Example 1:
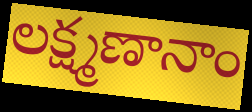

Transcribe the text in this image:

లక్ష్మణానాం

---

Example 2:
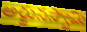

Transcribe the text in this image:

అర్జునస్వామి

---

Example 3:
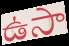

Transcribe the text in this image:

ఉసా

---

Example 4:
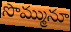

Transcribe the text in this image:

సొమ్మునూ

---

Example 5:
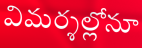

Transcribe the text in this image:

విమర్శల్లోనూ